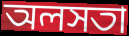
অলসতা